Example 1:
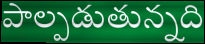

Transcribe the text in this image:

పాల్పడుతున్నది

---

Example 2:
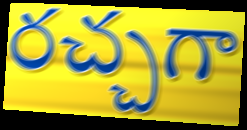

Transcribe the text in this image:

రచ్చగా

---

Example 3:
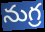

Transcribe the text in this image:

నుగ్ర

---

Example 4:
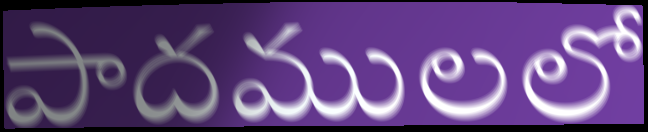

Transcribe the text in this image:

పాదములలో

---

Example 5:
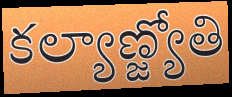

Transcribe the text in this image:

కల్యాణ్జ్యోతి